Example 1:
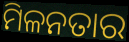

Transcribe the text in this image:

ମିଳନତାର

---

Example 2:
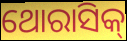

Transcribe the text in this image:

ଥୋରାସିକ୍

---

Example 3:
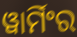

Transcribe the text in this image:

ୱାର୍ମିଂର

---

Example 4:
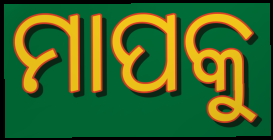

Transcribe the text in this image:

ମାପକୁ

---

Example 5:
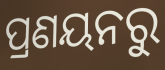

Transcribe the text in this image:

ପ୍ରଣୟନରୁ